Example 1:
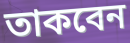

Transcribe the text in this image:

তাকবেন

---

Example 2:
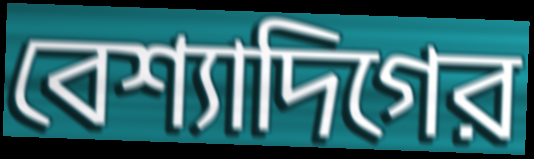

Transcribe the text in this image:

বেশ্যাদিগের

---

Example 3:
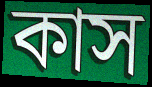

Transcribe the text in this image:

কাস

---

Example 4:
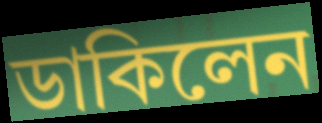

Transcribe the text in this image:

ডাকিলেন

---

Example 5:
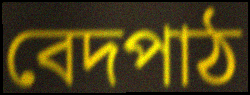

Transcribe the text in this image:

বেদপাঠ